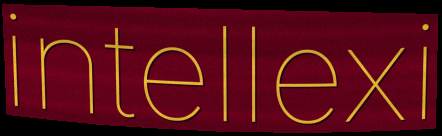
intellexi